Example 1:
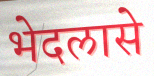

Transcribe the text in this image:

भेदलासे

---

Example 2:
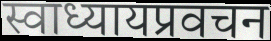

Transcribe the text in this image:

स्वाध्यायप्रवचन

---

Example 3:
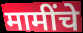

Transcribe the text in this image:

मामींचे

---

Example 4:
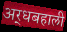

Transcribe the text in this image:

अर्धबहाली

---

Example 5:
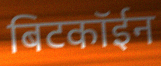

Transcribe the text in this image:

बिटकॉईन